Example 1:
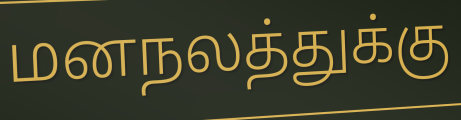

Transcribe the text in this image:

மனநலத்துக்கு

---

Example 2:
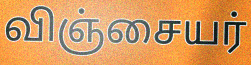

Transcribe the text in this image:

விஞ்சையர்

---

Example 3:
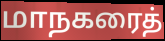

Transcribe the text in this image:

மாநகரைத்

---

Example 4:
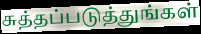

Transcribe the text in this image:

சுத்தப்படுத்துங்கள்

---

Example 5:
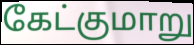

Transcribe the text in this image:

கேட்குமாறு